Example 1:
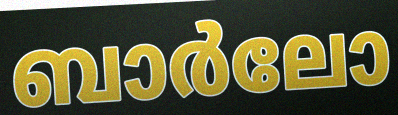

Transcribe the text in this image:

ബാർലോ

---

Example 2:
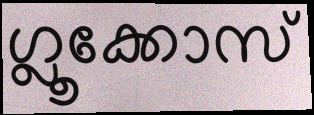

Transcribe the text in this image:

ഗ്ലൂക്കോസ്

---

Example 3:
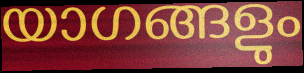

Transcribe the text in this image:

യാഗങ്ങളും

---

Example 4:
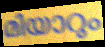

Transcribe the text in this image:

മിയാറും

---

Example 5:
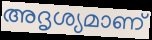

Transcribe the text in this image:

അദൃശ്യമാണ്